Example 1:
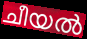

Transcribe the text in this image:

ചീയൽ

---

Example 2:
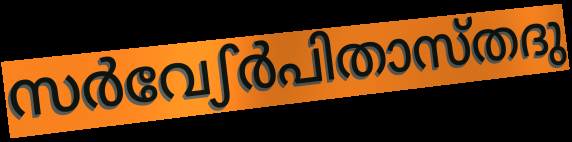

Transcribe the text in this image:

സർവേഽർപിതാസ്തദു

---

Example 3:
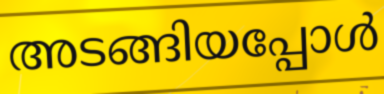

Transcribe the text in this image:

അടങ്ങിയപ്പോൾ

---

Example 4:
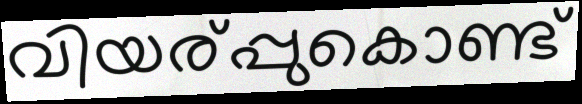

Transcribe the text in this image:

വിയര്പ്പുകൊണ്ട്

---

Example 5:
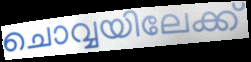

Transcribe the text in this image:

ചൊവ്വയിലേക്ക്